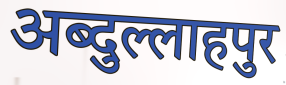
अब्दुल्लाहपुर